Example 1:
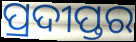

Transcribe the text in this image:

ପ୍ରଦୀପ୍ତର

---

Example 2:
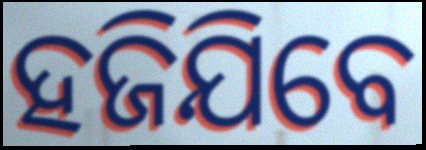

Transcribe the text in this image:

ହଜିଯିବେ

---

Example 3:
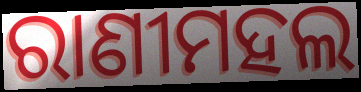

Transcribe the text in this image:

ରାଣୀମହଲ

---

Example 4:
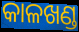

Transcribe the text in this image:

କାଳଖଣ୍ଡ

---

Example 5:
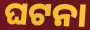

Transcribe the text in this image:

ଘଟନା